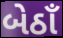
બેઠાઁ